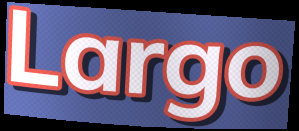
Largo